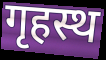
गृहस्थ